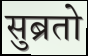
सुब्रतो